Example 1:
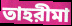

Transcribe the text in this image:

তাহরীমা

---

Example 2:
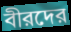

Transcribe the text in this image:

বীরদের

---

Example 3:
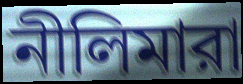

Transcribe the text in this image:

নীলিমারা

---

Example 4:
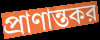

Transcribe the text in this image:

প্রাণান্তকর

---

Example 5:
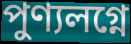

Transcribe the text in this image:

পুণ্যলগ্নে